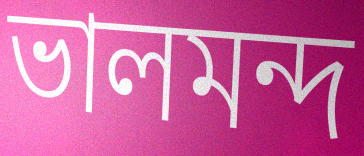
ভালমন্দ